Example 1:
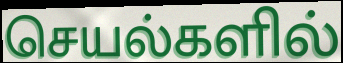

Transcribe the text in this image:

செயல்களில்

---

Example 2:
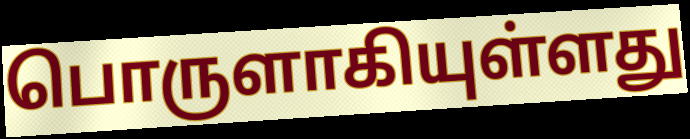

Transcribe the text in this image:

பொருளாகியுள்ளது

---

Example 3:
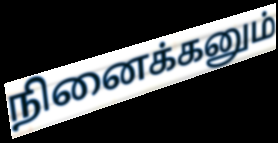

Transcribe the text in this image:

நினைக்கனும்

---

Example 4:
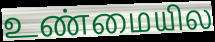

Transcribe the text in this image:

உண்மையில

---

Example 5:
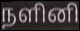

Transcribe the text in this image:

நளினி